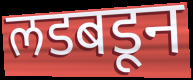
लडबडून